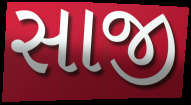
સાજી